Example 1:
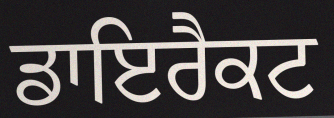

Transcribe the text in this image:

ਡਾਇਰੈਕਟ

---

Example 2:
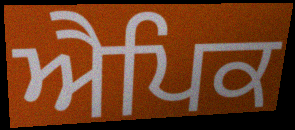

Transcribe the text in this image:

ਐਪਿਕ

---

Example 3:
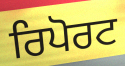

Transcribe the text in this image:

ਰਿਪੋਰਟ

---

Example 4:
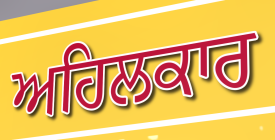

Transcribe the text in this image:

ਅਹਿਲਕਾਰ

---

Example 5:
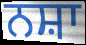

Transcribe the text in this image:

ਨਸ਼ਾ